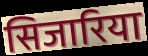
सिजारिया